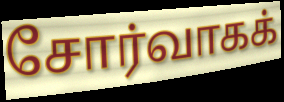
சோர்வாகக்